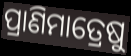
ପ୍ରାଣିମାତ୍ରେଷୁ